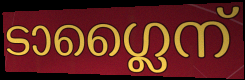
ടാഗ്ലൈന്